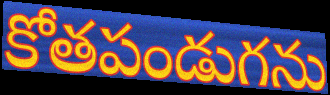
కోతపండుగను